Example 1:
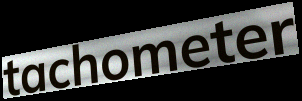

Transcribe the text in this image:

tachometer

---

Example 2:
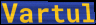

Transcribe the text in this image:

Vartul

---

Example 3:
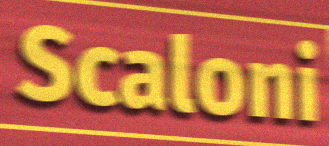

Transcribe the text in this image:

Scaloni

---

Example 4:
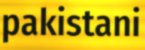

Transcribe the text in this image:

pakistani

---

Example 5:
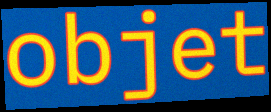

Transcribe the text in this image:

objet